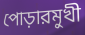
পোড়ারমুখী